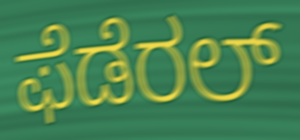
ಫೆಡೆರಲ್